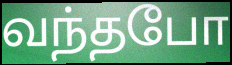
வந்தபோ